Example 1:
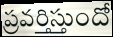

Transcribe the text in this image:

ప్రవర్తిస్తుందో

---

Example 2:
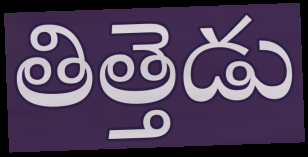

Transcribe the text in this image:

తిత్తెడు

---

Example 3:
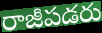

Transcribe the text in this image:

రాజీపడరు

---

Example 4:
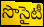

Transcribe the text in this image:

సొసైటీ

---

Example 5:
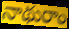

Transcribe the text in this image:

నాథురాం